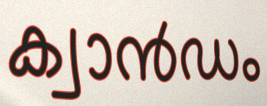
ക്വാൻഡം